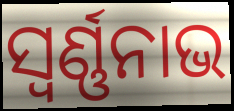
ସ୍ବର୍ଣ୍ଣନାଭ